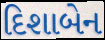
દિશાબેન